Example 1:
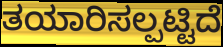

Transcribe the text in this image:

ತಯಾರಿಸಲ್ಪಟ್ಟಿದೆ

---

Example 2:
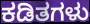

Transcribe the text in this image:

ಕಡಿತಗಳು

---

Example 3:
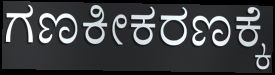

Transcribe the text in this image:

ಗಣಕೀಕರಣಕ್ಕೆ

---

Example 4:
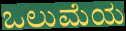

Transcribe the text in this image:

ಒಲುಮೆಯ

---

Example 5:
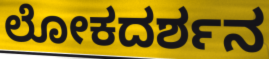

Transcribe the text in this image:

ಲೋಕದರ್ಶನ